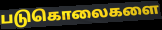
படுகொலைகளை